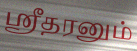
ஸ்ரீதரனும்